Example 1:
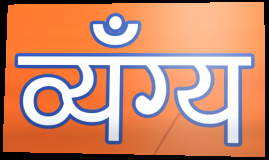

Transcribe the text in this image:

व्यँग्य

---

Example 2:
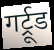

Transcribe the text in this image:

गर्ट्रूड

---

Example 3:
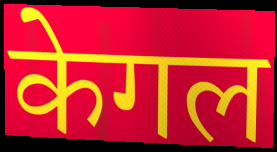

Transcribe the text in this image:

केगल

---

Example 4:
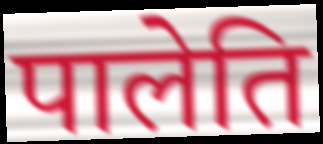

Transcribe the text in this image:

पालेति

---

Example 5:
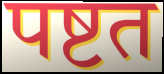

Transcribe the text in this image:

पष्टत